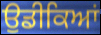
ਉਡੀਕਿਆਂ